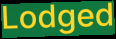
Lodged